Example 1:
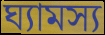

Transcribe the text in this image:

ঘ্যামস্য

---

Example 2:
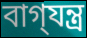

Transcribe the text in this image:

বাগ্‌যন্ত্র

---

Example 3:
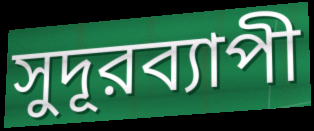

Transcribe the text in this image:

সুদূরব্যাপী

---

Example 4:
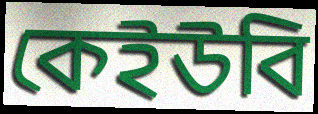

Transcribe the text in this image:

কেইউবি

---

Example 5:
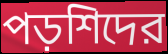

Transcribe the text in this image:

পড়শিদের